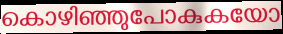
കൊഴിഞ്ഞുപോകുകയോ